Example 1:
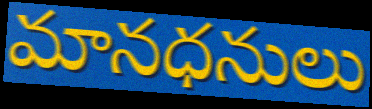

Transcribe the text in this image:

మానధనులు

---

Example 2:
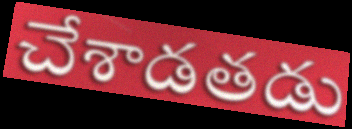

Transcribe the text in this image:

చేశాడతడు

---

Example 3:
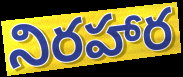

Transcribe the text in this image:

నిరహార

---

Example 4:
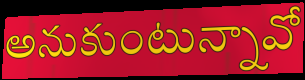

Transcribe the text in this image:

అనుకుంటున్నావో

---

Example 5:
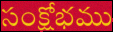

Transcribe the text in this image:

సంక్షోభము